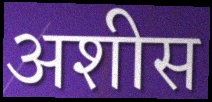
अशीस